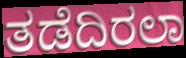
ತಡೆದಿರಲಾ